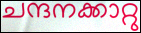
ചന്ദനക്കാറ്റു